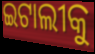
ଇଟାଲୀକୁ